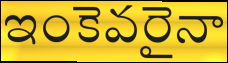
ఇంకెవరైనా